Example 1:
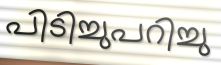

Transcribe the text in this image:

പിടിച്ചുപറിച്ചു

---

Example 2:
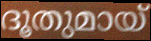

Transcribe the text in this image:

ദൂതുമായ്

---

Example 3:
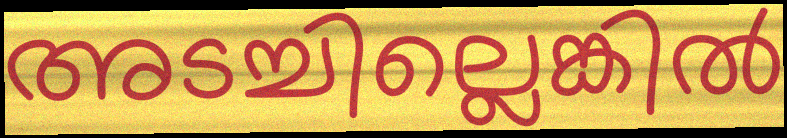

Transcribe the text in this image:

അടച്ചില്ലെങ്കിൽ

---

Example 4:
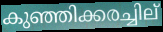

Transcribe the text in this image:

കുഞ്ഞിക്കരച്ചില്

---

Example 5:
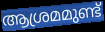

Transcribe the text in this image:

ആശ്രമമുണ്ട്